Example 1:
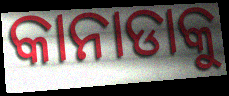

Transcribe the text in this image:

କାନାଡାକୁ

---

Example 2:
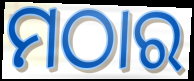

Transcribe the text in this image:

ମଠାର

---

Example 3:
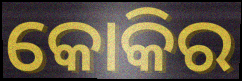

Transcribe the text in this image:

କୋକିର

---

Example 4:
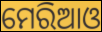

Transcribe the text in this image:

ମେରିଆଓ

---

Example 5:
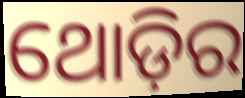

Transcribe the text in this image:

ଥୋଡ଼ିର